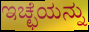
ಇಚ್ಛೆಯನ್ನು